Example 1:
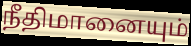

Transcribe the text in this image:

நீதிமானையும்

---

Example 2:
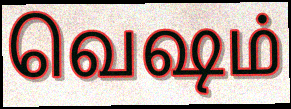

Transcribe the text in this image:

வெஷம்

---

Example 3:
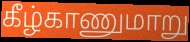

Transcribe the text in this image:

கீழ்காணுமாறு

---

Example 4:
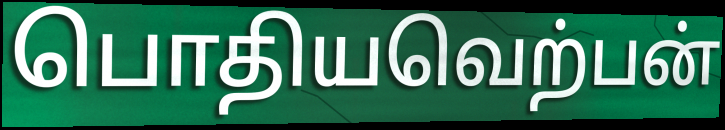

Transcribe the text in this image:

பொதியவெற்பன்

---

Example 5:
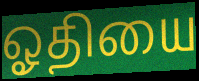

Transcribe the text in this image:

ஓதியை